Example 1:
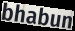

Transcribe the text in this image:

bhabun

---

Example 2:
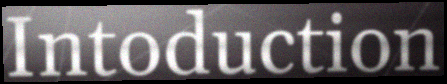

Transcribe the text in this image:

Intoduction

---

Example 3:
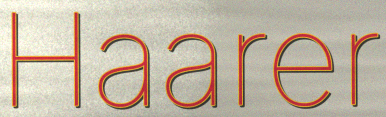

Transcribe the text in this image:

Haarer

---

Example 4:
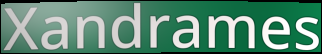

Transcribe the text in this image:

Xandrames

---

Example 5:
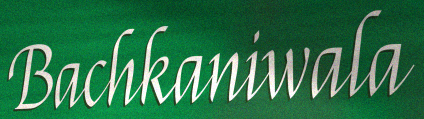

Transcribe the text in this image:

Bachkaniwala